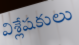
విశ్లేషకులు